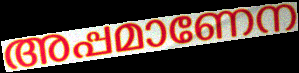
അപ്പമാണേന